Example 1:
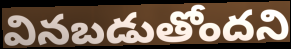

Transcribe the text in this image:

వినబడుతోందని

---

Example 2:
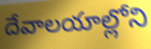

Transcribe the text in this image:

దేవాలయాల్లోని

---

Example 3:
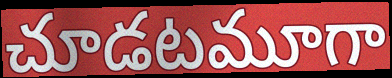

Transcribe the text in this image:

చూడటమూగా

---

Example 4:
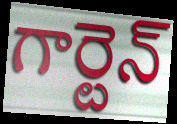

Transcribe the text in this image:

గార్టెన్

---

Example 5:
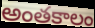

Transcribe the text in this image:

అంతకాలం